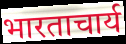
भारताचार्य